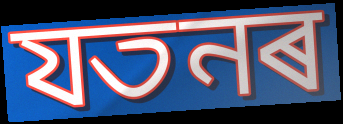
যতনৰ